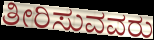
ತೀರಿಸುವವರು